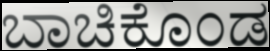
ಬಾಚಿಕೊಂಡ